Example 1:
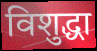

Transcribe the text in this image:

विशुद्धा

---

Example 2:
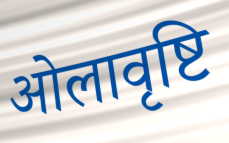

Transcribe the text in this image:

ओलावृष्टि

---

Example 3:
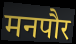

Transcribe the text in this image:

मनपौर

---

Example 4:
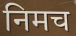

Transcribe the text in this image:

निमच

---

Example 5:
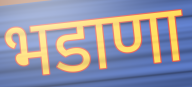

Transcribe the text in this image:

भडाणा